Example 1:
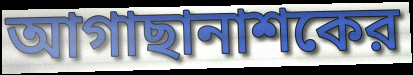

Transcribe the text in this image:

আগাছানাশকের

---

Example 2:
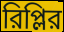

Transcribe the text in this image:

রিপ্লির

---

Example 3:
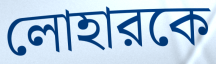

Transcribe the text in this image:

লোহারকে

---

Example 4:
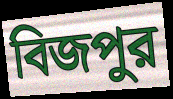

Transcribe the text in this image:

বিজপুর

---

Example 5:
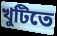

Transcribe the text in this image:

খুটিতে